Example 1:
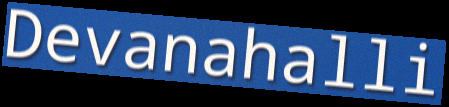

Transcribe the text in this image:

Devanahalli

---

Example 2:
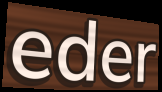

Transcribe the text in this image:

eder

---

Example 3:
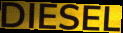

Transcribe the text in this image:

DIESEL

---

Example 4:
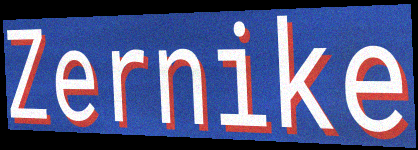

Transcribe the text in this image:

Zernike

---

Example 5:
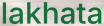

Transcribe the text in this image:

lakhata